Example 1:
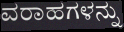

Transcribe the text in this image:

ವರಾಹಗಳನ್ನು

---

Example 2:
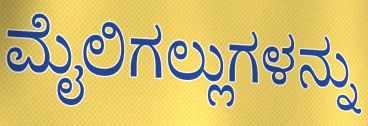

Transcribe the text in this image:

ಮೈಲಿಗಲ್ಲುಗಳನ್ನು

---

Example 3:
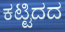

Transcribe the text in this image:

ಕಟ್ಟಿದದ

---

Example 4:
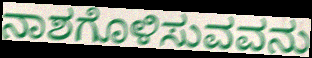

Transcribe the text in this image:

ನಾಶಗೊಳಿಸುವವನು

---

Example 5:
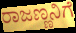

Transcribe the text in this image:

ರಾಜಣ್ಣನಿಗೆ